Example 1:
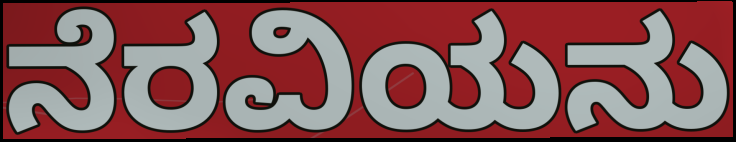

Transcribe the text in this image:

ನೆರವಿಯನು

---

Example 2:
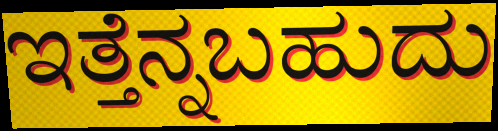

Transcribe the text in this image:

ಇತ್ತೆನ್ನಬಹುದು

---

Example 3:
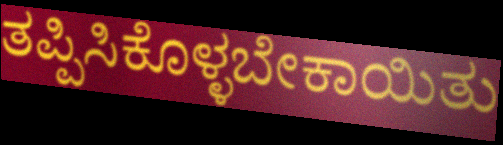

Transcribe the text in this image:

ತಪ್ಪಿಸಿಕೊಳ್ಳಬೇಕಾಯಿತು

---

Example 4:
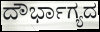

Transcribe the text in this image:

ದೌರ್ಭಾಗ್ಯದ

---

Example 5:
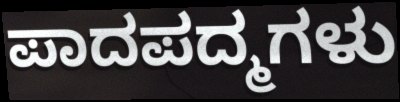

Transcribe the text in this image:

ಪಾದಪದ್ಮಗಳು